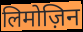
लिमोज़िन